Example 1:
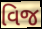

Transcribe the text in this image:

વિજ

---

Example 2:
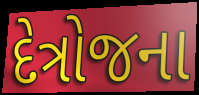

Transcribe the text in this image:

દેત્રોજના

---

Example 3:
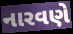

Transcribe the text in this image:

નારવણે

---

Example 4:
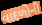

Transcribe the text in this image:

વાદળોની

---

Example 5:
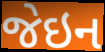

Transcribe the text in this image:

જેઇન